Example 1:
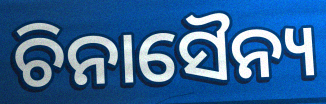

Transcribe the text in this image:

ଚିନାସୈନ୍ୟ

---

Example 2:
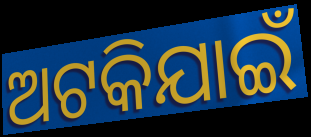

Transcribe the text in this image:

ଅଟକିଯାଇଁ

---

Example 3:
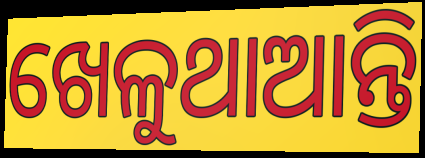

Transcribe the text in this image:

ଖେଳୁଥାଆନ୍ତି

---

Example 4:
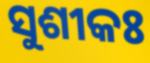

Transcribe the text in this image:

ସୁଶୀକଃ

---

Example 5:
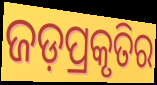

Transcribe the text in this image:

ଜଡ଼ପ୍ରକୃତିର